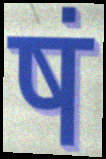
षं